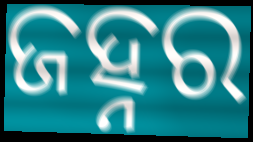
ଜହ୍ନର